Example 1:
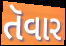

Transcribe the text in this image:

તૅવાર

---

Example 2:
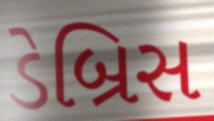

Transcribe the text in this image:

ડેબ્રિસ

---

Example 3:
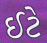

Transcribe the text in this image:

ઈટે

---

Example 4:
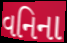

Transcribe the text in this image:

વનિના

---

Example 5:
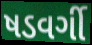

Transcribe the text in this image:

ષડવર્ગી